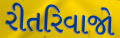
રીતરિવાજો